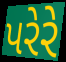
પરેરે